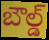
బౌల్డ్